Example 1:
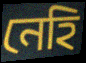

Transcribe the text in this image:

নেহি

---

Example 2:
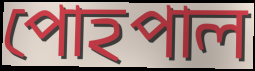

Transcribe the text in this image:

পোহপাল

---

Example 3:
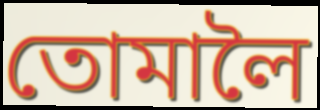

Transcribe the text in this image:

তোমালৈ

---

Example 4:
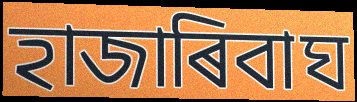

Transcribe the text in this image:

হাজাৰিবাঘ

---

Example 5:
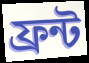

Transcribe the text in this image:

ফ্ৰন্ট